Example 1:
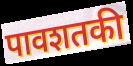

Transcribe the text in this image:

पावशतकी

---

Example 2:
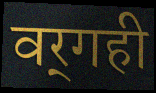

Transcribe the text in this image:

वर्गही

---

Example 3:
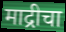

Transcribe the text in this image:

माद्रीचा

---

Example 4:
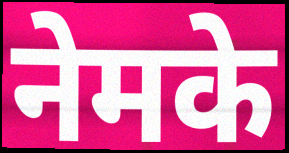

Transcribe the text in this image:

नेमके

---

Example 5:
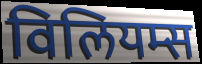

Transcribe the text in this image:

विलियम्स